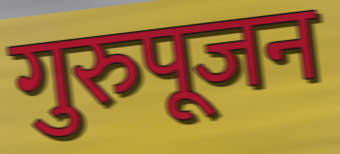
गुरुपूजन